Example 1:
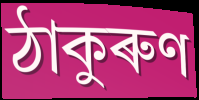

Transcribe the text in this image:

ঠাকুৰুণ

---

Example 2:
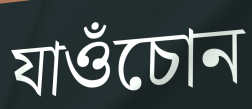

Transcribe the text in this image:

যাওঁচোন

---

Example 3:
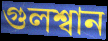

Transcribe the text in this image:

গুলশ্বান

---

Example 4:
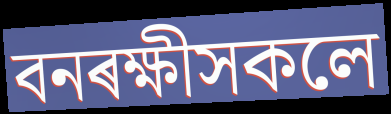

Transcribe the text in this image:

বনৰক্ষীসকলে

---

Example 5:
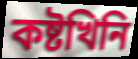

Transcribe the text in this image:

কষ্টখিনি